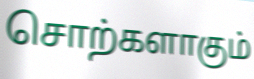
சொற்களாகும்